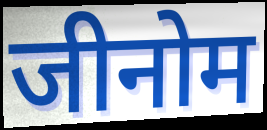
जीनोम